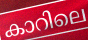
കാറിലെ